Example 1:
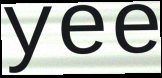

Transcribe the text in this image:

yee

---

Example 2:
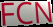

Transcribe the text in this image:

FCN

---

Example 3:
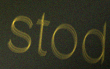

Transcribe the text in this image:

stod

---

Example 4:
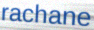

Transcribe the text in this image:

rachane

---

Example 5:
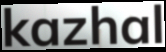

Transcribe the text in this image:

kazhal